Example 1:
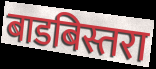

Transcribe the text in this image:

बाडबिस्तरा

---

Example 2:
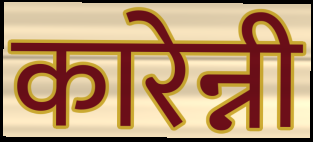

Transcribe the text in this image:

कारेन्नी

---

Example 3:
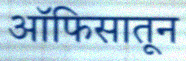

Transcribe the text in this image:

ऑफिसातून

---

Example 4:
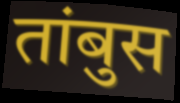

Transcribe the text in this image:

तांबुस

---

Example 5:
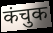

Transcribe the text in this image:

कंचुक